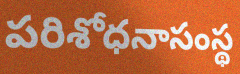
పరిశోధనాసంస్థ